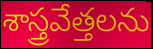
శాస్త్రవేత్తలను